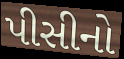
પીસીનો